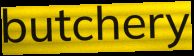
butchery